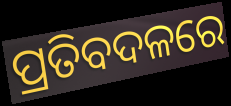
ପ୍ରତିବଦଳରେ